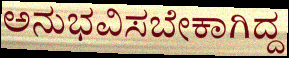
ಅನುಭವಿಸಬೇಕಾಗಿದ್ದ